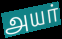
அயர்